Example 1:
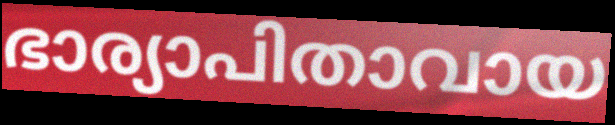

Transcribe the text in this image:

ഭാര്യാപിതാവായ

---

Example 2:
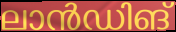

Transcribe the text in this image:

ലാൻഡിങ്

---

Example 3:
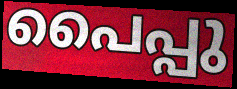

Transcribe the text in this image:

പൈപ്പു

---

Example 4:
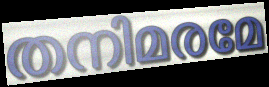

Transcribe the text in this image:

തനിമരമേ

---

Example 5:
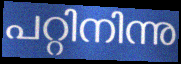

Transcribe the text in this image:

പറ്റിനിന്നു